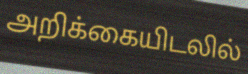
அறிக்கையிடலில்